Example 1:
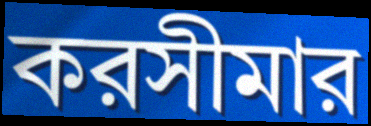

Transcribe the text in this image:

করসীমার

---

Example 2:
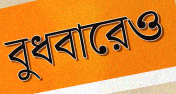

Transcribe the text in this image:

বুধবারেও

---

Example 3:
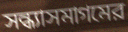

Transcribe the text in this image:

সন্ধ্যাসমাগমের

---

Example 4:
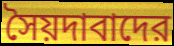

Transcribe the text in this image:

সৈয়দাবাদের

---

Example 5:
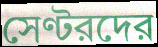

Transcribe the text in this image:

সেণ্টরদের